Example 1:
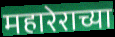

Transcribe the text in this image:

महारेराच्या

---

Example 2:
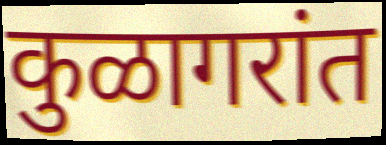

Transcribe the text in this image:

कुळागरांत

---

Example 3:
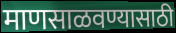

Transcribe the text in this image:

माणसाळवण्यासाठी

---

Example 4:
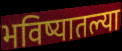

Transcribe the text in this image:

भविष्यातल्या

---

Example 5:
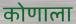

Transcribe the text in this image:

कोणाला